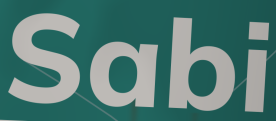
Sabi